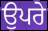
ਉਪਰੇ